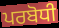
ਪਰਬੋਧੀ